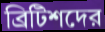
ব্রিটিশদের